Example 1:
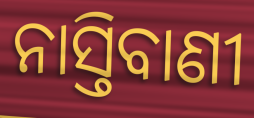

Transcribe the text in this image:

ନାସ୍ତିବାଣୀ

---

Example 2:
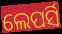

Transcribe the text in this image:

ଲେପର୍ସି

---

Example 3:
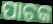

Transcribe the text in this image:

ପାଚକ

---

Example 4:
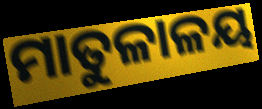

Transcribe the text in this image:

ମାତୁଳାଳୟ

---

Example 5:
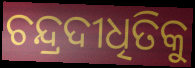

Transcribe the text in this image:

ଚନ୍ଦ୍ରଦୀଧିତିକୁ